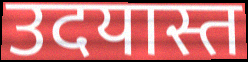
उदयास्त